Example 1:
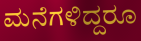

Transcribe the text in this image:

ಮನೆಗಳಿದ್ದರೂ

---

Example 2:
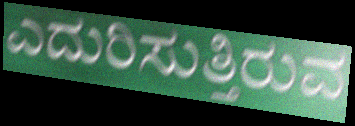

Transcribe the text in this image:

ಎದುರಿಸುತ್ತಿರುವ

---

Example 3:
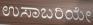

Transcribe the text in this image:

ಉಸಾಬರಿಯೇ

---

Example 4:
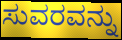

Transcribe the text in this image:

ಸುವರವನ್ನು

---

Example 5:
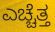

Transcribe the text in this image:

ಎಚ್ಚೆತ್ತ